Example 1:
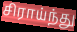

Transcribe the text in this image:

சிராய்ந்து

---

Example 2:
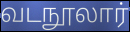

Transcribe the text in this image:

வடநூலார்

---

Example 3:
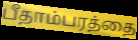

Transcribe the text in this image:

பீதாம்பரத்தை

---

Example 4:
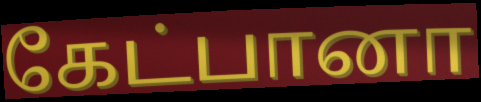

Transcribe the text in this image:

கேட்பானா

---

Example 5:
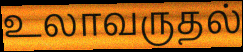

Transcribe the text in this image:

உலாவருதல்